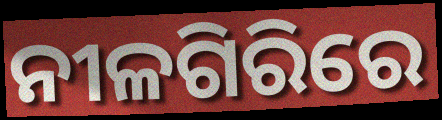
ନୀଳଗିରିରେ